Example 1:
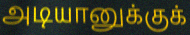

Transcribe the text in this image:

அடியானுக்குக்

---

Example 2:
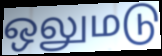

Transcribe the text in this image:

ஒலுமடு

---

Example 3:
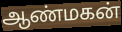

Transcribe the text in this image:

ஆண்மகன்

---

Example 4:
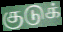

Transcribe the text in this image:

குடுக்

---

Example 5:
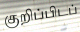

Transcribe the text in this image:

குறிப்பிடப்